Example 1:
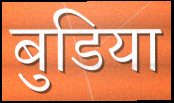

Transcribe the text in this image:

बुडिया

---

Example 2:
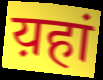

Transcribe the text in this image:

य़हां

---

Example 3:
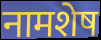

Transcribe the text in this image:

नामशेष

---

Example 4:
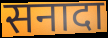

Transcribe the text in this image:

सनादा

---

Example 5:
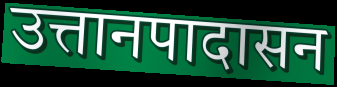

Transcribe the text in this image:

उत्तानपादासन